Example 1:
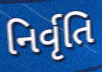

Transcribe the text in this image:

નિર્વૃતિ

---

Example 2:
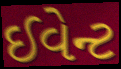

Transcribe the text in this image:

ઈવેન્ટ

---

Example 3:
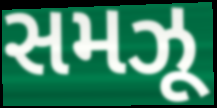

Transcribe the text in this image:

સમઝૂ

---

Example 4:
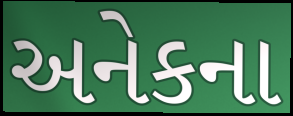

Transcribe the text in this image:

અનેકના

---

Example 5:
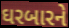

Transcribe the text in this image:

ઘરબારને